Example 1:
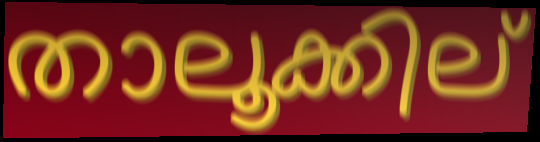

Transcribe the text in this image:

താലൂക്കില്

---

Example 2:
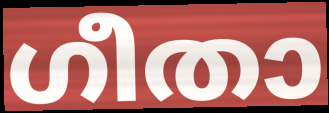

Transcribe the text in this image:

ഗീതാ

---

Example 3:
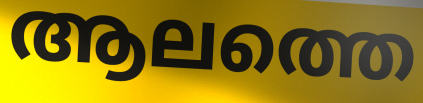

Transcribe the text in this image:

ആലത്തെ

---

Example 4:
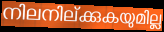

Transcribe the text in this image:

നിലനില്ക്കുകയുമില്ല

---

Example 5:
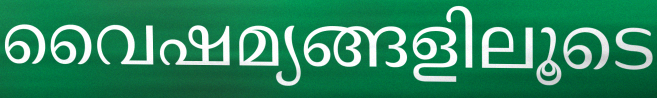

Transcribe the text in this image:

വൈഷമ്യങ്ങളിലൂടെ